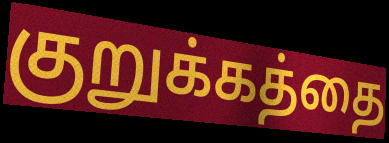
குறுக்கத்தை